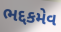
ભદ્દકમેવ